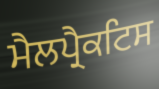
ਮੈਲਪ੍ਰੈਕਟਿਸ